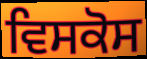
ਵਿਸਕੋਸ